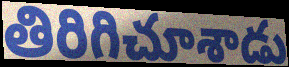
తిరిగిచూశాడు